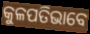
କୁଳପତିଭାବେ